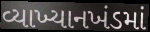
વ્યાખ્યાનખંડમાં